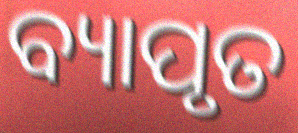
ବ୍ୟାପୃତ